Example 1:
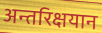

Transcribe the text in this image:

अन्तरिक्षयान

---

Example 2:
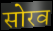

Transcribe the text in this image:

सोरव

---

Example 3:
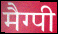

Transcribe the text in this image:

मैग्पी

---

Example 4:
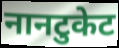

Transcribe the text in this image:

नानटुकेट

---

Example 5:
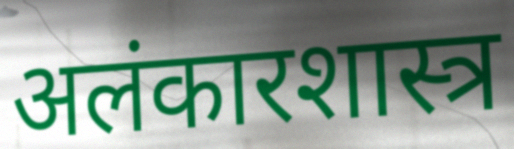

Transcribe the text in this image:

अलंकारशास्त्र